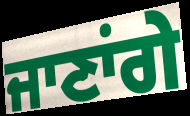
ਜਾਣਾਂਗੇ